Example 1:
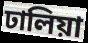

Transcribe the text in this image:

ঢালিয়া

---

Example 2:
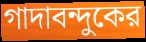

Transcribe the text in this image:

গাদাবন্দুকের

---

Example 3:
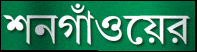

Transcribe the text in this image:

শনগাঁওয়ের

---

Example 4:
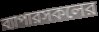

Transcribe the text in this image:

ব্যাপারসকলের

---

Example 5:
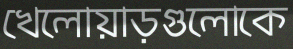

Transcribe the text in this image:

খেলোয়াড়গুলোকে